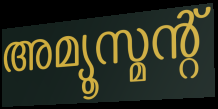
അമ്യൂസ്മന്റ്